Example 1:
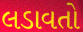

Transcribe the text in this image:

લડાવતો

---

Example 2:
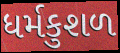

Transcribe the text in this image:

ધર્મકુશળ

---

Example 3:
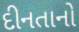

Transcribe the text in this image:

દીનતાનો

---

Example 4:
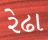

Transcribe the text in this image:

રેઢા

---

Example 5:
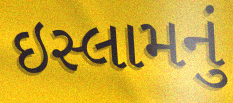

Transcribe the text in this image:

ઇસ્લામનું